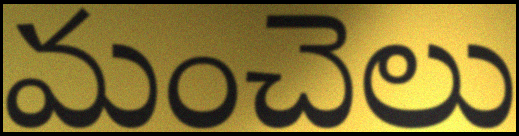
మంచెలు